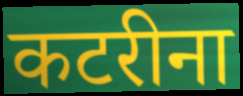
कटरीना